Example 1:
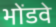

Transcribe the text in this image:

भोंडवे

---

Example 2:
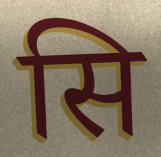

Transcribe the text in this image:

सि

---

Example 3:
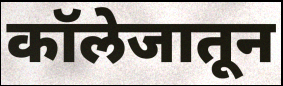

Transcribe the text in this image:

कॉलेजातून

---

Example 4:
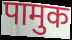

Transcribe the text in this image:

पामुक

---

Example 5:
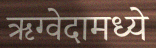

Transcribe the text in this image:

ऋग्वेदामध्ये